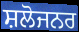
ਸ਼ਲੋਜਨਰ